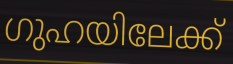
ഗുഹയിലേക്ക്